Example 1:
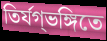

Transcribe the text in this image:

তির্যগ্ভঙ্গিতে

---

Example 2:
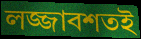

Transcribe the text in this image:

লজ্জাবশতই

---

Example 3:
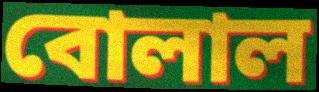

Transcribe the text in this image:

বোলাল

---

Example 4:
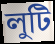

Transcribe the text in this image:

লুটি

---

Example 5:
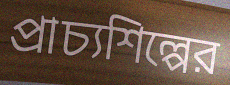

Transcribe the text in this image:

প্রাচ্যশিল্পের